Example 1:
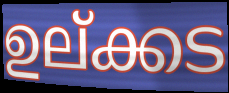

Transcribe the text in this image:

ഉല്ക്കട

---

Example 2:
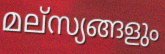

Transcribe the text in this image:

മല്സ്യങ്ങളും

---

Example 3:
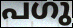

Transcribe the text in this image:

പഗു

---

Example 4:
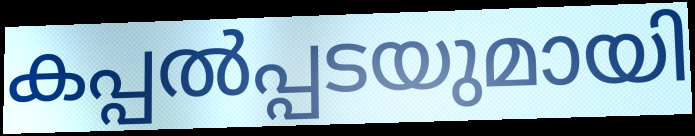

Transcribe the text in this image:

കപ്പൽപ്പടയുമായി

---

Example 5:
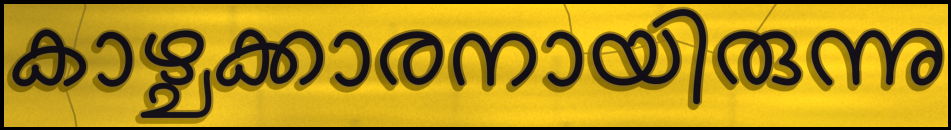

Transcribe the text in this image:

കാഴ്ചക്കാരനായിരുന്നു